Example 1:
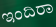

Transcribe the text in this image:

ಇಂದಿರಾ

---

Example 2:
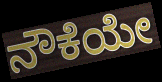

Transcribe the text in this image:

ನೌಕೆಯೇ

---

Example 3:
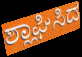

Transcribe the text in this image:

ಶ್ಲಾಘಿಸಿದ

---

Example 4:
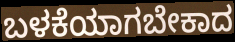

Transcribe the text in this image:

ಬಳಕೆಯಾಗಬೇಕಾದ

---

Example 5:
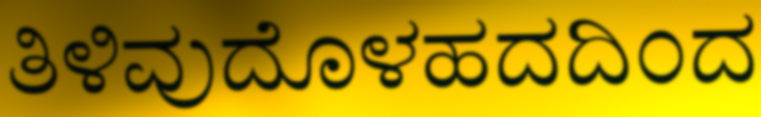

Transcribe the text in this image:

ತಿಳಿವುದೊಳಹದದಿಂದ